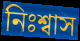
নিঃশ্বাস